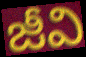
జీవి